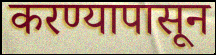
करण्यापासून